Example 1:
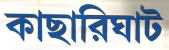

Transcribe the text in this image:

কাছারিঘাট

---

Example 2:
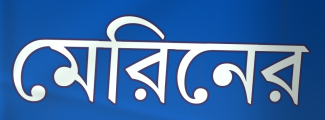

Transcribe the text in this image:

মেরিনের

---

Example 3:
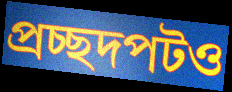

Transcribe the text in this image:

প্রচ্ছদপটও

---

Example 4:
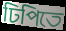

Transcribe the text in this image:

ঢিপিতে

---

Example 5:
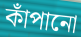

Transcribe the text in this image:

কাঁপানো